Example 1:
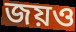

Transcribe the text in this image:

জয়ও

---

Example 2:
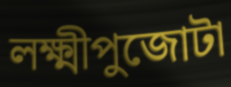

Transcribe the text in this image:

লক্ষ্মীপুজোটা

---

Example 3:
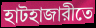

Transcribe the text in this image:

হাটহাজারীতে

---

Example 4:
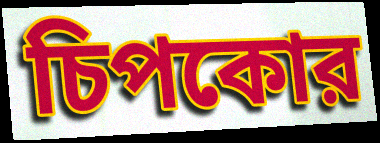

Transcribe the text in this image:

চিপকোর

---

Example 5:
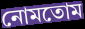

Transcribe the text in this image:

নোমতোম